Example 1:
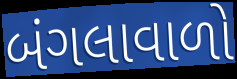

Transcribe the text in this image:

બંગલાવાળો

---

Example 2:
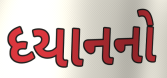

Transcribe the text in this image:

ધ્યાનનો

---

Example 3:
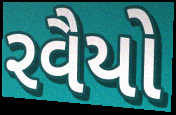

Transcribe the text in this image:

રવૈયો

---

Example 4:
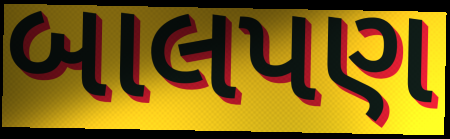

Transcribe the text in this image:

બાલપણ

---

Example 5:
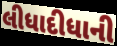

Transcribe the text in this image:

લીધાદીધાની